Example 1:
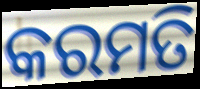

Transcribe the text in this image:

କରମତି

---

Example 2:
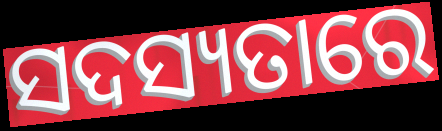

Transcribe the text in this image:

ସଦସ୍ୟତାରେ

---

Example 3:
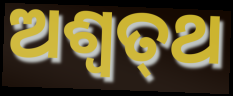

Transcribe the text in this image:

ଅଶ୍ଵତ୍‍ଥ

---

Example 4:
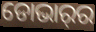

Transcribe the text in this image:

ଡୋଭାର୍‌ର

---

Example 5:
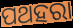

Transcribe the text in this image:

ପଥହରା